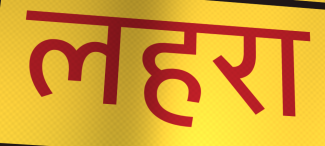
लहरा